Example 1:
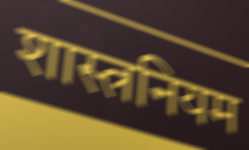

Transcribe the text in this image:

शास्त्रनियम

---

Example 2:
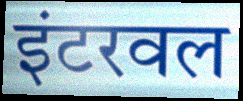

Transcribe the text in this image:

इंटरवल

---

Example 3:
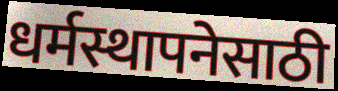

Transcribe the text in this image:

धर्मस्थापनेसाठी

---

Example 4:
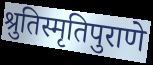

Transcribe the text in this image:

श्रुतिस्मृतिपुराणे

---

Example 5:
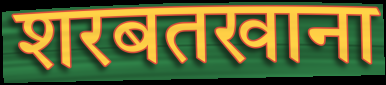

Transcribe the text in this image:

शरबतखाना